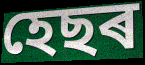
হেছৰ